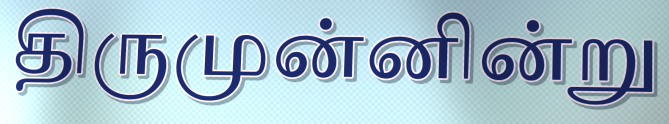
திருமுன்னின்று